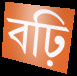
বঢ়ি